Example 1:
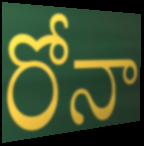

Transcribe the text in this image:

రోనా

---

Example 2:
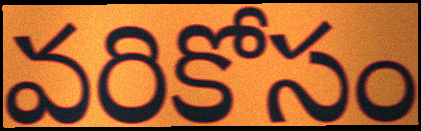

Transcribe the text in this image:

వరికోసం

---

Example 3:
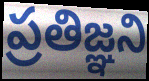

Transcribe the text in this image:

ప్రతిజ్ఞని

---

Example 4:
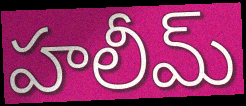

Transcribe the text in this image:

హలీమ్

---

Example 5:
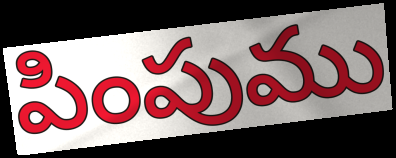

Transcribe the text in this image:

పింపుము